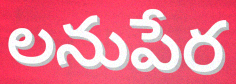
లనుపేర